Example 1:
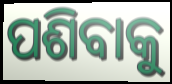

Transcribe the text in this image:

ପଶିବାକୁ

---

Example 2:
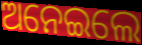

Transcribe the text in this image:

ଅନେଇଲେ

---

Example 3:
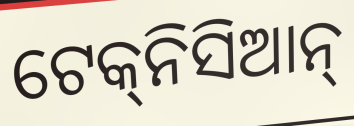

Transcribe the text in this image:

ଟେକ୍‌ନିସିଆନ୍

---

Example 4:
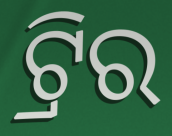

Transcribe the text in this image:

ଟ୍ରିର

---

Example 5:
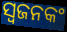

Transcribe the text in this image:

ସ୍ଵଜନକଂ